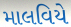
માલવિયે